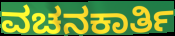
ವಚನಕಾರ್ತಿ